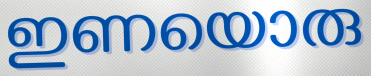
ഇണയൊരു